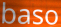
baso